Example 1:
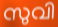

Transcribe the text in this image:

സുവി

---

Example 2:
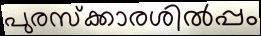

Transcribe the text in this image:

പുരസ്ക്കാരശിൽപ്പം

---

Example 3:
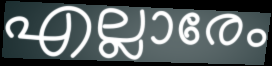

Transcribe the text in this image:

എല്ലാരേം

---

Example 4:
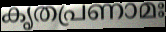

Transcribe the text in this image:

കൃതപ്രണാമഃ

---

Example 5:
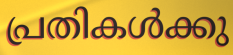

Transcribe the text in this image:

പ്രതികൾക്കു